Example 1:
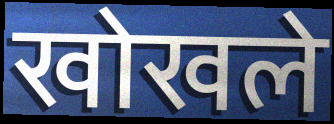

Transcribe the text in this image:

खोखले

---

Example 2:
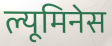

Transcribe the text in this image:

ल्यूमिनेस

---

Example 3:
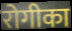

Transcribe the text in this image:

रोगीका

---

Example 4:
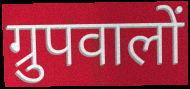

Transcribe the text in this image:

ग्रुपवालों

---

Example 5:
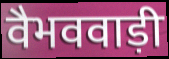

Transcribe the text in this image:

वैभववाड़ी